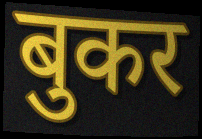
बुकर